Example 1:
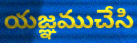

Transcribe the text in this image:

యజ్ఞముచేసి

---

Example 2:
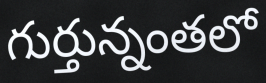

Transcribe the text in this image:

గుర్తున్నంతలో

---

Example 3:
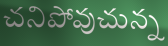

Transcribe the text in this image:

చనిపోవుచున్న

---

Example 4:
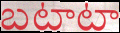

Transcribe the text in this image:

బటాటా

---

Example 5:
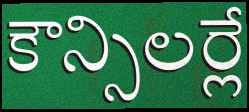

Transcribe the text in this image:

కౌన్సిలర్లే